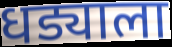
धड्याला